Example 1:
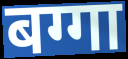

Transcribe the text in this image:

बग्गा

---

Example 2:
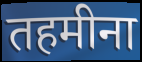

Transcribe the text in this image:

तहमीना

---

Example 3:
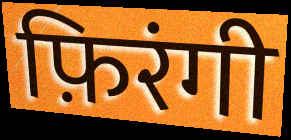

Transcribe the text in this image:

फ़िरंगी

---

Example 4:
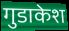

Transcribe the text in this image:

गुडाकेश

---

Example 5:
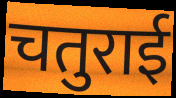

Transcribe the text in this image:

चतुराई